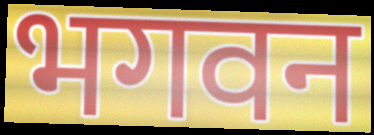
भगवन